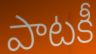
పాటకీ